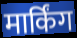
मार्किंग